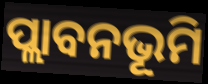
ପ୍ଲାବନଭୂମି